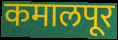
कमालपूर